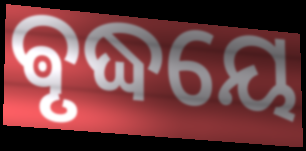
ଵୃଦ୍ଧୟେ